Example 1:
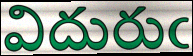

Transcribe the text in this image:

విదురుఁ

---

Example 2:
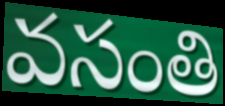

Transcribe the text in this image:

వసంతి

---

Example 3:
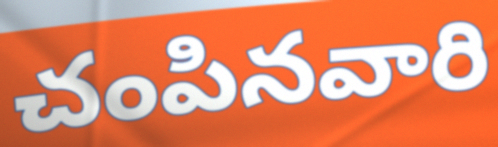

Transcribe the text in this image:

చంపినవారి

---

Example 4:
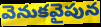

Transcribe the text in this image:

వెనుకవైపున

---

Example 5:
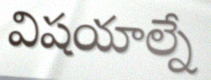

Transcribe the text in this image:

విషయాల్నే